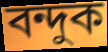
বন্দুক